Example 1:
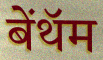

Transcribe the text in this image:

बेंथॅम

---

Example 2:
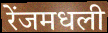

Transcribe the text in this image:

रेंजमधली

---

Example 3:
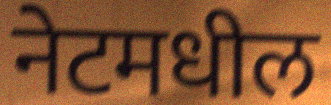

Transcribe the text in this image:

नेटमधील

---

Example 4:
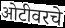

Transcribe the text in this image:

ओटीवरचे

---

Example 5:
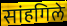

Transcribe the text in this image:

सांहगिले